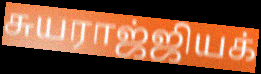
சுயராஜ்ஜியக்